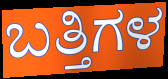
ಬತ್ತಿಗಳ